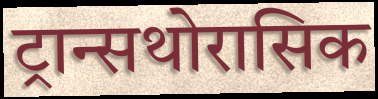
ट्रान्सथोरासिक